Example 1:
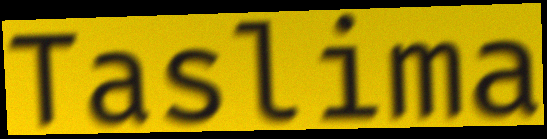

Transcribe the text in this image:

Taslima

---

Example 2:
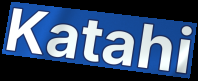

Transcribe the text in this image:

Katahi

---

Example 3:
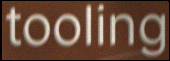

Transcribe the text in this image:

tooling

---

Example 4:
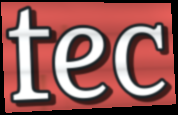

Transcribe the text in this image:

tec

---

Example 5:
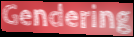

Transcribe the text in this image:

Gendering